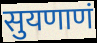
सुयणाणं